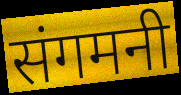
संगमनी